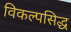
विकल्पसिद्ध